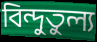
বিন্দুতুল্য